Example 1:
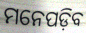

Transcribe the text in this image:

ମନେପଡ଼ିବ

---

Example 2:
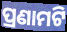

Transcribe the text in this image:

ପ୍ରଣାମଟି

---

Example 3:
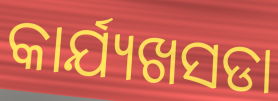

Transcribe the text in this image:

କାର୍ଯ୍ୟଖସଡା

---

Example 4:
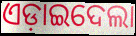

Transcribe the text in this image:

ଏଡ଼ାଇଦେଲା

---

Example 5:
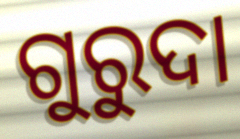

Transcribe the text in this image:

ଗୁରୁଦା